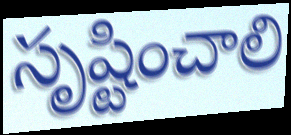
సృష్టించాలి